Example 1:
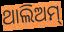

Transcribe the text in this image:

ଥାଲିଅମ୍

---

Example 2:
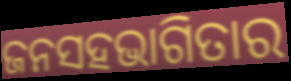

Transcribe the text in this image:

ଜନସହଭାଗିତାର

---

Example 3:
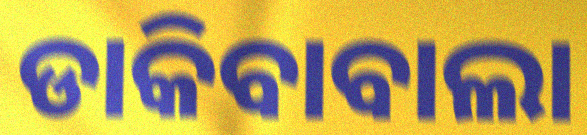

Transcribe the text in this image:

ଡାକିବାବାଲା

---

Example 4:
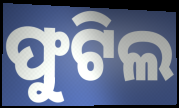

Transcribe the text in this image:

ଫୁଟିଲ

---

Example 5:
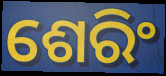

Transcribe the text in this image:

ଶେରିଂ